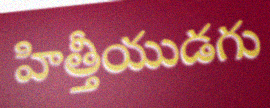
హిత్తీయుడగు